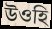
উওহি